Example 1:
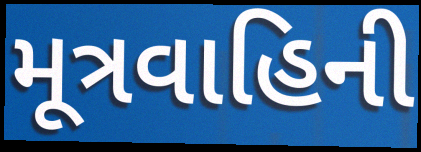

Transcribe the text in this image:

મૂત્રવાહિની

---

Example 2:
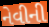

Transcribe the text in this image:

નેવીની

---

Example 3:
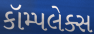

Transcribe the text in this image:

કૉમ્પલેક્સ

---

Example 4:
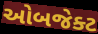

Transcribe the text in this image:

ઓબજેક્ટ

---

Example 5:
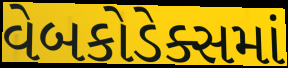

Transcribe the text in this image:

વેબકોડેક્સમાં